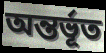
অন্তর্ভূত